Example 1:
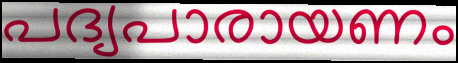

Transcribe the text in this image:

പദ്യപാരായണം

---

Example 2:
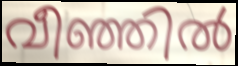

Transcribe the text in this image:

വീഞ്ഞിൽ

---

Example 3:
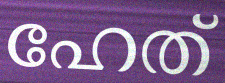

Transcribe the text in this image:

ഹേത്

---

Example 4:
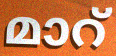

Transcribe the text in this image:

മാറ്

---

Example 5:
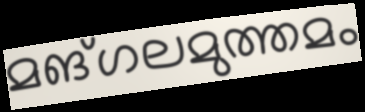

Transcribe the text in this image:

മങ്ഗലമുത്തമം